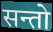
सन्तो